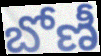
బోణీ